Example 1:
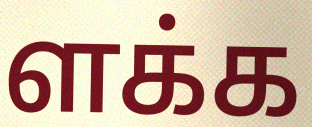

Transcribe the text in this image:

ளக்க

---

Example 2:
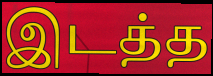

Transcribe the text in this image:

இடத்த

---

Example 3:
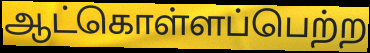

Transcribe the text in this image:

ஆட்கொள்ளப்பெற்ற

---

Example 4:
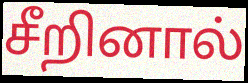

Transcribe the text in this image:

சீறினால்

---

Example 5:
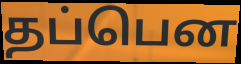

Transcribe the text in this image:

தப்பென